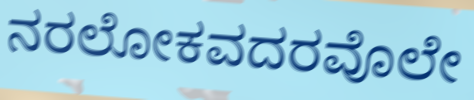
ನರಲೋಕವದರವೊಲೇ